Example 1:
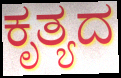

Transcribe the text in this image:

ಕೃತ್ಯದ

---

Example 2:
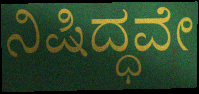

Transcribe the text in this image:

ನಿಷಿದ್ಧವೇ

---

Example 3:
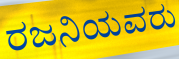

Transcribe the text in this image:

ರಜನಿಯವರು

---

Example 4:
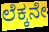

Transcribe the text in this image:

ಲೆಕ್ಕನೇ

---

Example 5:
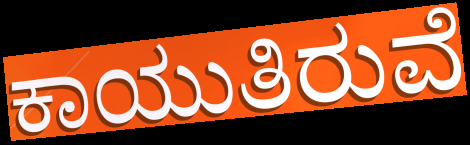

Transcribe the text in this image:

ಕಾಯುತಿರುವೆ